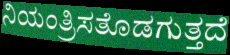
ನಿಯಂತ್ರಿಸತೊಡಗುತ್ತದೆ